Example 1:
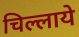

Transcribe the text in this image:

चिल्लाये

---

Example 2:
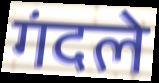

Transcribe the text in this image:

गंदले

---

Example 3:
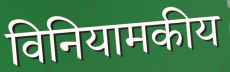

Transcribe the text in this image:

विनियामकीय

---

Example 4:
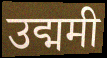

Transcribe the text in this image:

उद्ममी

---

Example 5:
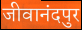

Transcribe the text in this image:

जीवानंदपुर